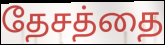
தேசத்தை